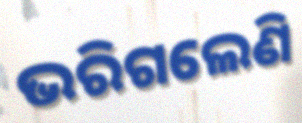
ଭରିଗଲେଣି